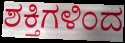
ಶಕ್ತಿಗಳಿಂದ